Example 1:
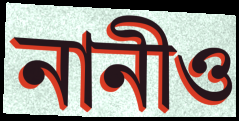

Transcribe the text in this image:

নানীও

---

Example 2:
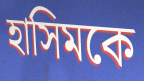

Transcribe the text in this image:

হাসিমকে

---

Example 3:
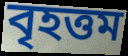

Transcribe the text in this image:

বৃহত্তম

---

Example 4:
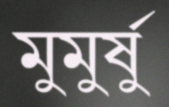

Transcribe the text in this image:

মুমুর্ষু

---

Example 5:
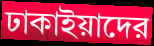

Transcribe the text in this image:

ঢাকাইয়াদের